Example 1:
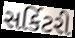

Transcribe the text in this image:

સર્કિટરી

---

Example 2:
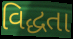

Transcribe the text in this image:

વિદ્ધતા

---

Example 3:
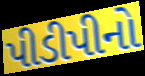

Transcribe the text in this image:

પીડીપીનો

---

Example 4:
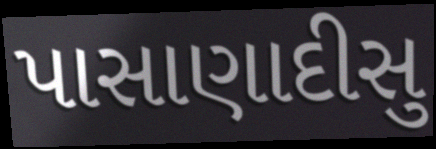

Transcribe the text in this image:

પાસાણાદીસુ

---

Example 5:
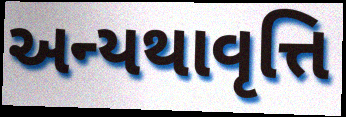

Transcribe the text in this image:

અન્યથાવૃત્તિ